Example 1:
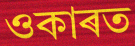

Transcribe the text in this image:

ওকাৰত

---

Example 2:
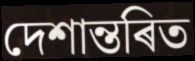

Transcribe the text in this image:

দেশান্তৰিত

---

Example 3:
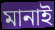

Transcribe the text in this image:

মানাই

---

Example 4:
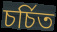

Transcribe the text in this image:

চৰ্চিত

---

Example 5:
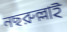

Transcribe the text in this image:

নছৰুল্লাই